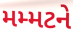
મમ્મટને